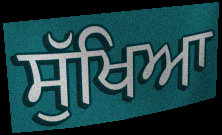
ਸੁੱਖਿਆ